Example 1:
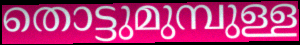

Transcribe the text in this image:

തൊട്ടുമുമ്പുള്ള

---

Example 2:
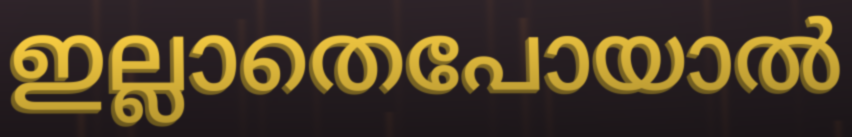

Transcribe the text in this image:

ഇല്ലാതെപോയാൽ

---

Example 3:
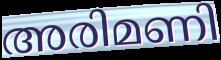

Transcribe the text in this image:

അരിമണി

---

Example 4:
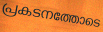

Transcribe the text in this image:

പ്രകടനത്തോടെ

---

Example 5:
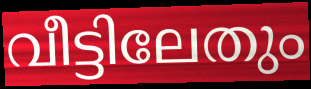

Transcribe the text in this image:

വീട്ടിലേതും